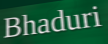
Bhaduri